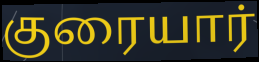
குரையார்